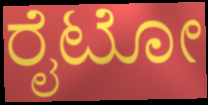
ರೈಟೋ